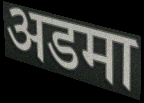
अडमा